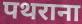
पथराना